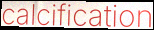
calcification